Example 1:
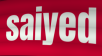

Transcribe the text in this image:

saiyed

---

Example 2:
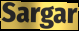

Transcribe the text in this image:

Sargar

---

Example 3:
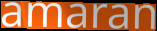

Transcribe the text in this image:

amaran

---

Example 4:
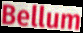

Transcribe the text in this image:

Bellum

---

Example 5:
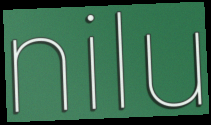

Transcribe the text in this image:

nilu